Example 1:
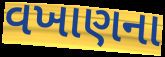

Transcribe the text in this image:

વખાણના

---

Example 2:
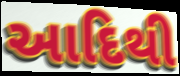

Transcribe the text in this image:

આદિથી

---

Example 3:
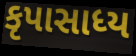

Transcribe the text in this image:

કૃપાસાધ્ય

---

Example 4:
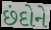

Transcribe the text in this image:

છંદોને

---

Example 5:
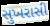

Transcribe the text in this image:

સુખરાસી